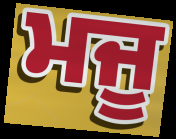
ਮਜੂ